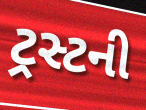
ટ્રસ્ટની